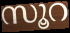
സൂറ